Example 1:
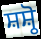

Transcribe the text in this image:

ਸ਼ਸ਼੍ਠੋ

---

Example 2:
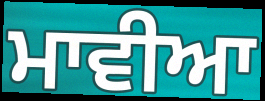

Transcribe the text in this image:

ਮਾਵੀਆ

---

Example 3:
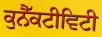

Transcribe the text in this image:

ਕੁਨੈੱਕਟੀਵਿਟੀ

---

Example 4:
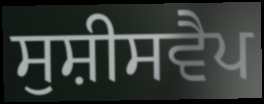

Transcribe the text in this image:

ਸੁਸ਼ੀਸਵੈਪ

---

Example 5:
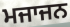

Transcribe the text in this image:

ਮਜਾਜਨ